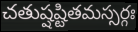
చతుష్షష్టితమస్సర్గః